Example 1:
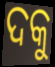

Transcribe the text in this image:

ଦକୁ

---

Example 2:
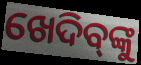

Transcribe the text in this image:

ଖେଦିବ୍‌ଙ୍କୁ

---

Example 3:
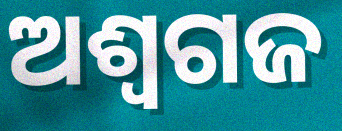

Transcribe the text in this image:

ଅଶ୍ୱଗଜ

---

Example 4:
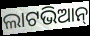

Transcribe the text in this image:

ଲାଟଭିଆନ୍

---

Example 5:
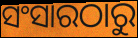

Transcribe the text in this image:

ସଂସାରଠାରୁ